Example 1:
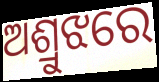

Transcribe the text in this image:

ଅଶ୍ରୁଝରେ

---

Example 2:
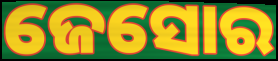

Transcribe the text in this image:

ଜେସୋର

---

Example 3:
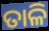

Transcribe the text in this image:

ତାଳି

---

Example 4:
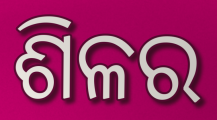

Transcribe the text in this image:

ଶିଳର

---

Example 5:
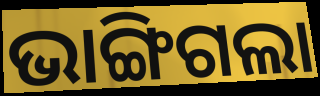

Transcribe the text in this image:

ଭାଙ୍ଗିଗଲା